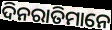
ଦିନରାତିମାନେ